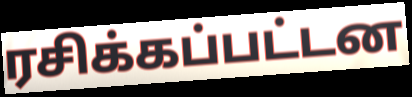
ரசிக்கப்பட்டன